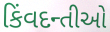
કિંવદન્તીઓ